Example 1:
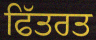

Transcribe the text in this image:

ਫਿੱਤਰਤ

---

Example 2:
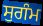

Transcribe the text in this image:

ਸੁਗੰਮ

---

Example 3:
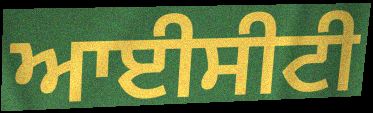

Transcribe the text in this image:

ਆਈਸੀਟੀ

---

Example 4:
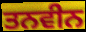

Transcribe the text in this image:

ਤਨਵੀਨ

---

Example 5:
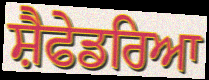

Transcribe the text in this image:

ਸ਼ੈਫੇਡਰਿਆ